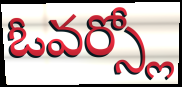
ఓవర్స్లో